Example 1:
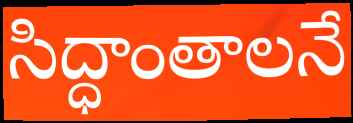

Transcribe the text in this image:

సిద్ధాంతాలనే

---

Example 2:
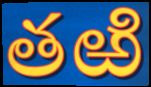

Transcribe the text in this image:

తఱి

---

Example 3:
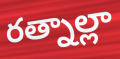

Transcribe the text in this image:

రత్నాల్లా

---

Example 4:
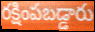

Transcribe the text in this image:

రక్షింపబడ్డారు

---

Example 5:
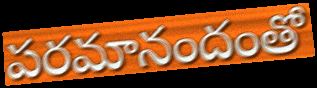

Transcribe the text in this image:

పరమానందంతో